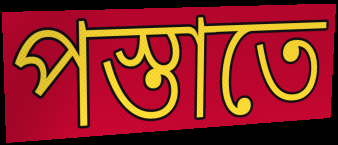
পস্তাতে